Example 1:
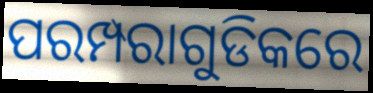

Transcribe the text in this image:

ପରମ୍ପରାଗୁଡିକରେ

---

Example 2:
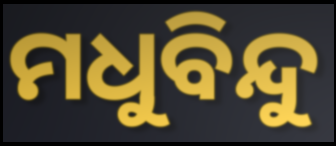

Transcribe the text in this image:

ମଧୁବିନ୍ଦୁ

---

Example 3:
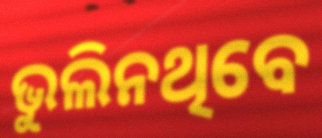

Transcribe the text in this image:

ଭୁଲିନଥିବେ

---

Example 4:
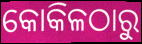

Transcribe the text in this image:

କୋକିଳଠାରୁ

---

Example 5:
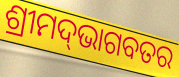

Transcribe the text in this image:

ଶ୍ରୀମଦ୍‌ଭାଗବତର